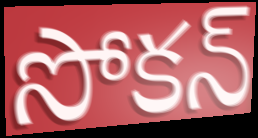
సోకన్